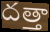
దత్తా